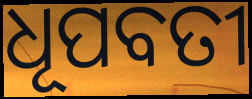
ଧୂପବତୀ